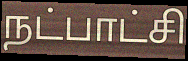
நட்பாட்சி